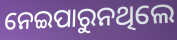
ନେଇପାରୁନଥିଲେ